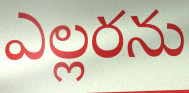
ఎల్లరను